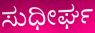
ಸುಧೀರ್ಘ